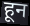
हून